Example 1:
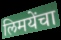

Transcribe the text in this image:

लिमयेंचा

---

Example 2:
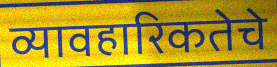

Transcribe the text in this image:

व्यावहारिकतेचे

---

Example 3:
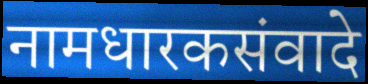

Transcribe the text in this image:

नामधारकसंवादे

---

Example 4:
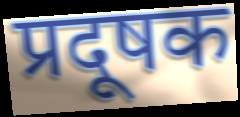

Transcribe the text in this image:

प्रदूषक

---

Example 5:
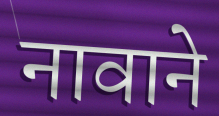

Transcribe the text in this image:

नावाने